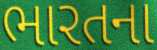
ભારતના